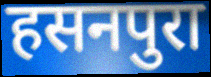
हसनपुरा